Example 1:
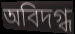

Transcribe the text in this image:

অবিদগ্ধ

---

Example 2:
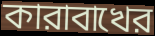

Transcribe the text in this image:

কারাবাখের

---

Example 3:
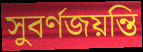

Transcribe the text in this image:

সুবর্ণজয়ন্তি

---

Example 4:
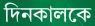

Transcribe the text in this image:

দিনকালকে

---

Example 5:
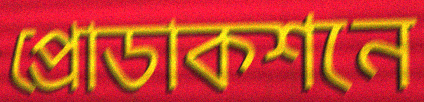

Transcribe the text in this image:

প্রোডাকশনে